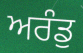
ਅਰੰਡੁ